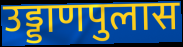
उड्डाणपुलास